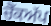
ਚੈੱਕਅੱਪ